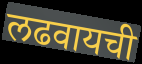
लढवायची